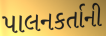
પાલનકર્તાની